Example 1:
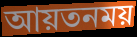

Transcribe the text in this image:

আয়তনময়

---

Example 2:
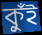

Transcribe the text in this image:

কুঁই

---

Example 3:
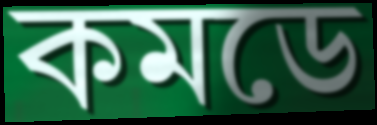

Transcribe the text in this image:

কমডে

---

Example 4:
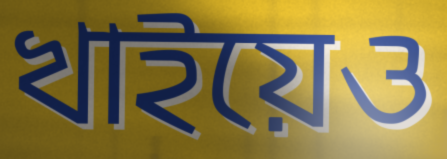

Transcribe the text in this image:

খাইয়েও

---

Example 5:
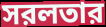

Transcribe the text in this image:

সরলতার